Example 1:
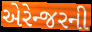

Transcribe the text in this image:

એરેન્જરની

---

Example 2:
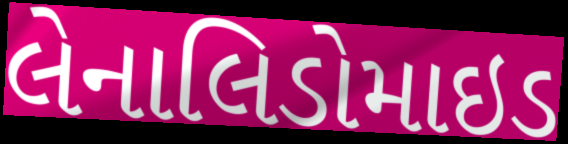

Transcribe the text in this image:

લેનાલિડોમાઇડ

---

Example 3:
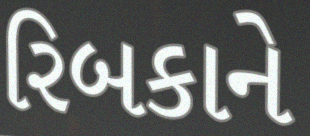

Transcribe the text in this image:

રિબકાને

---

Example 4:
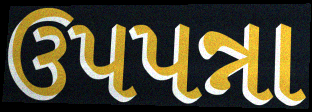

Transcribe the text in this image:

ઉપપન્ના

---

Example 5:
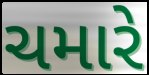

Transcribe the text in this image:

ચમારે